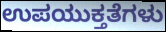
ಉಪಯುಕ್ತತೆಗಳು